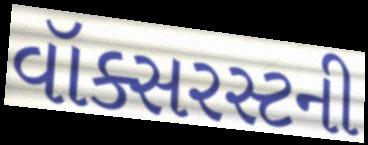
વૉક્સરસ્ટની